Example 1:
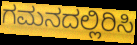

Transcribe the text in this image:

ಗಮನದಲ್ಲಿರಿಸಿ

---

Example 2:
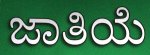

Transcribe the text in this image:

ಜಾತಿಯೆ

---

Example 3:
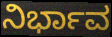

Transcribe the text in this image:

ನಿರ್ಭಾವ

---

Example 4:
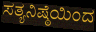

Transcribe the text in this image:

ಸತ್ಯನಿಷ್ಠೆಯಿಂದ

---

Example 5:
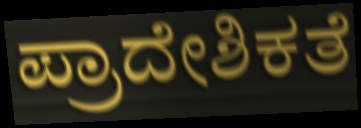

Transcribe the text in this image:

ಪ್ರಾದೇಶಿಕತೆ